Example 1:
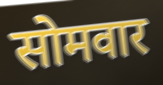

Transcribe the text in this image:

सोमवार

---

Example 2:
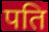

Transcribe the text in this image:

पति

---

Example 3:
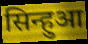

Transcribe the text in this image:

सिन्हुआ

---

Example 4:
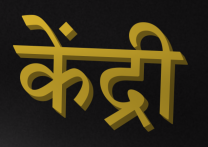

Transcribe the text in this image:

केंद्री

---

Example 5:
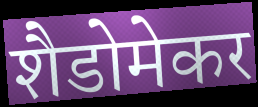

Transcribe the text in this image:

शैडोमेकर